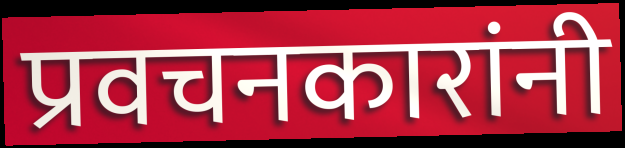
प्रवचनकारांनी